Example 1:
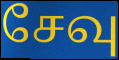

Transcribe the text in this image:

சேவு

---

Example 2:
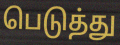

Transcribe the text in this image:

பெடுத்து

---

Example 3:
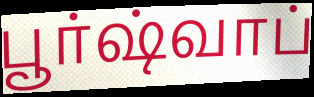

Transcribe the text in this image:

பூர்ஷ்வாப்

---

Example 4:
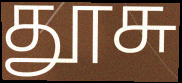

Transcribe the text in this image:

தூசு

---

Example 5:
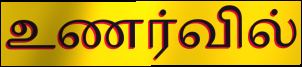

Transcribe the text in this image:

உணர்வில்